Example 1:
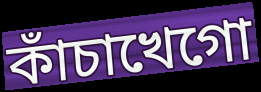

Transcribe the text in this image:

কাঁচাখেগো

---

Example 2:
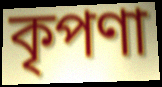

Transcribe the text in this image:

কৃপণা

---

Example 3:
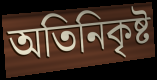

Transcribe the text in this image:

অতিনিকৃষ্ট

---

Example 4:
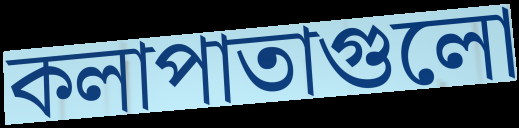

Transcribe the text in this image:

কলাপাতাগুলো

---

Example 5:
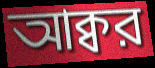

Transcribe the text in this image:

আক্বর